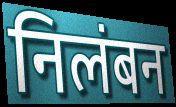
निलंबन